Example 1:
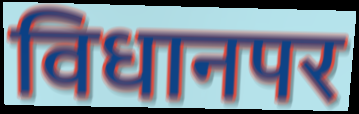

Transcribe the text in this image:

विधानपर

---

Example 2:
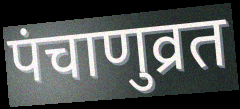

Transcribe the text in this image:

पंचाणुव्रत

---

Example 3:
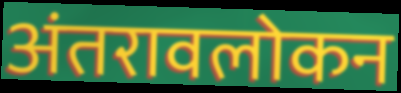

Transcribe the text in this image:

अंतरावलोकन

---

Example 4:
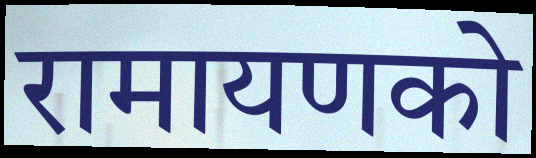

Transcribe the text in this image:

रामायणको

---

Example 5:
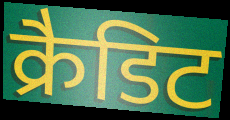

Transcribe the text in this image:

क्रैडिट